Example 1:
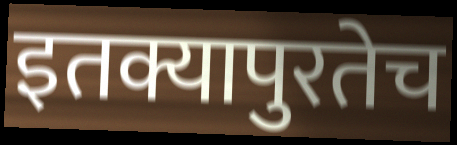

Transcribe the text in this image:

इतक्यापुरतेच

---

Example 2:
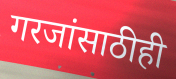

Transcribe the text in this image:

गरजांसाठीही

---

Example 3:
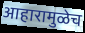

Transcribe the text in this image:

आहारामुळेच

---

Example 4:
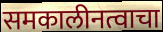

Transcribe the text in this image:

समकालीनत्वाचा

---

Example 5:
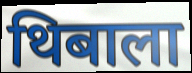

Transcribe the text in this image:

थिबाला